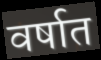
वर्षात